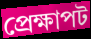
প্রেক্ষাপট